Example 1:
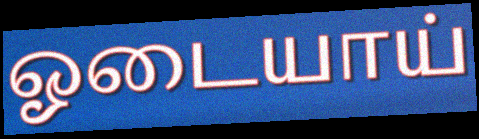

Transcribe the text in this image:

ஓடையாய்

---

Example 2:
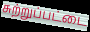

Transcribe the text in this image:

சுற்றுப்பட்டை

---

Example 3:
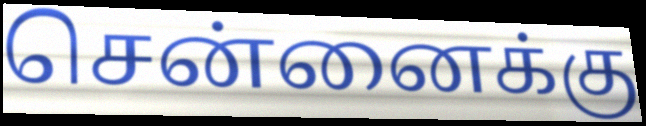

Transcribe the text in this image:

சென்னைக்கு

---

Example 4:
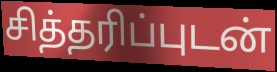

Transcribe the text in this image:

சித்தரிப்புடன்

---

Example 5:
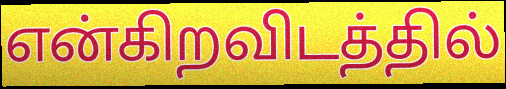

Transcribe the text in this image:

என்கிறவிடத்தில்